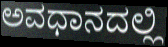
ಅವಧಾನದಲ್ಲಿ